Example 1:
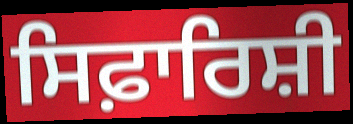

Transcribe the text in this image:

ਸਿਫ਼ਾਰਿਸ਼ੀ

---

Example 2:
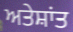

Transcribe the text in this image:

ਅਤੇਸ਼ਾਂਤ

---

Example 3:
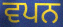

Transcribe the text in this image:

ਵਪਨ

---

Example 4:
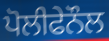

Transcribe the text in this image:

ਪੋਲੀਫੇਨੌਲ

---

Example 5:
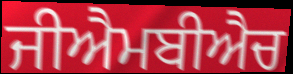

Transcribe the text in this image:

ਜੀਐਮਬੀਐਚ